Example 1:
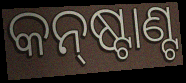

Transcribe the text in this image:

କନ୍‌ଷ୍ଟାଣ୍ଟ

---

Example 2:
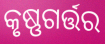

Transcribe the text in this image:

କୃଷ୍ଣଗର୍ତ୍ତର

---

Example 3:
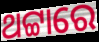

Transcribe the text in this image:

ଥଟ୍ଟାରେ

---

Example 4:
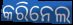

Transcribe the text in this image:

କରିନେଲ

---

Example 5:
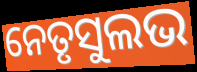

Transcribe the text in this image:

ନେତୃସୁଲଭ